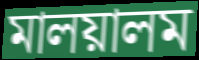
মালয়ালম